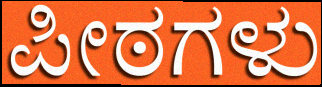
ಪೀಠಗಳು